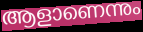
ആളാണെന്നും